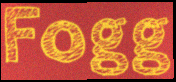
Fogg